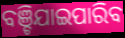
ବଞ୍ଚିଯାଇପାରିବ